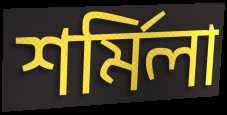
শর্মিলা